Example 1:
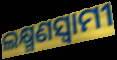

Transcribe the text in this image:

ଲକ୍ଷ୍ମଣସ୍ଵାମୀ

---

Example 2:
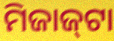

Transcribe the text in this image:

ମିଜାଜ୍‌ଟା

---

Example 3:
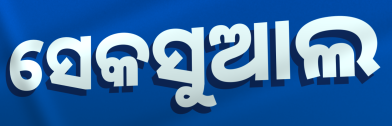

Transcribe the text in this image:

ସେକସୁଆଲ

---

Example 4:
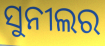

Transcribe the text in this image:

ସୁନୀଲର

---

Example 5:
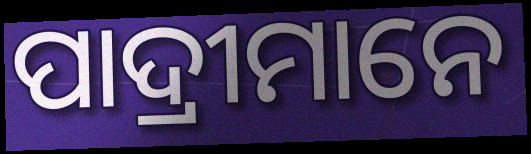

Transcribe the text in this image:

ପାଦ୍ରୀମାନେ